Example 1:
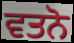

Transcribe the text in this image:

ਵਤਨੋ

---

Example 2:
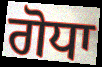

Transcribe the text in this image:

ਗੋਧਾ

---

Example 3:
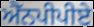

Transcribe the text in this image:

ਐੱਨਪੀਪੀਏ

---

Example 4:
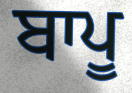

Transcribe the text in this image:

ਬਾਪੂ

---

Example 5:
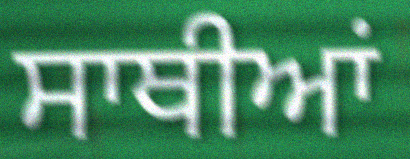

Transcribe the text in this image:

ਸਾਥੀਆਂ